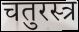
चतुरस्त्र